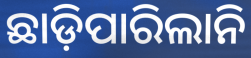
ଛାଡ଼ିପାରିଲାନି